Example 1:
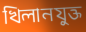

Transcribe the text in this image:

খিলানযুক্ত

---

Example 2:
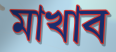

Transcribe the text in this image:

মাখাব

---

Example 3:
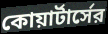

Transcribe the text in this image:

কোয়ার্টার্সের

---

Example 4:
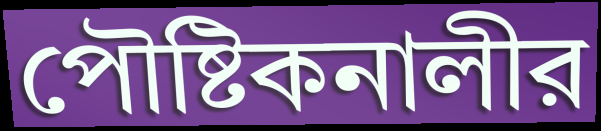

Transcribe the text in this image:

পৌষ্টিকনালীর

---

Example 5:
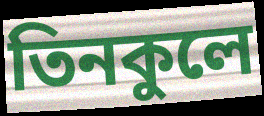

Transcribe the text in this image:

তিনকুলে